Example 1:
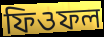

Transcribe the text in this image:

ফিওফল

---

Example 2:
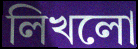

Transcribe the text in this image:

লিখলো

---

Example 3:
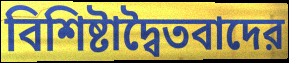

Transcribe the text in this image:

বিশিষ্টাদ্বৈতবাদের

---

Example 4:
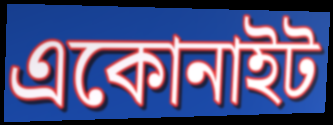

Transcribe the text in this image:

একোনাইট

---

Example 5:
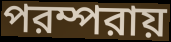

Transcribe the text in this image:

পরম্পরায়